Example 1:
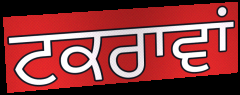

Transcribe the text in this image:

ਟਕਰਾਵਾਂ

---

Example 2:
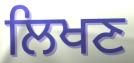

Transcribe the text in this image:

ਲਿਖਣ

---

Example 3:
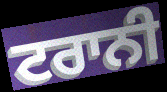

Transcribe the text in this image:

ਟਰਾਨੀ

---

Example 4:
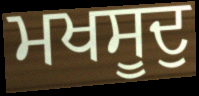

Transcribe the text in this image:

ਮਖਸੂਦੁ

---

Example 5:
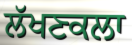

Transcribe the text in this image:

ਲੱਖਣਕਲਾ